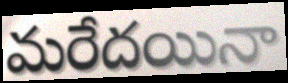
మరేదయినా